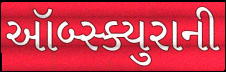
ઑબ્સ્ક્યુરાની